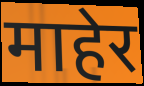
माहेर